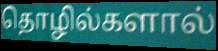
தொழில்களால்